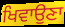
ਖਿਵਾਉਣਾ